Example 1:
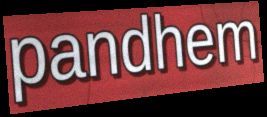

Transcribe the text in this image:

pandhem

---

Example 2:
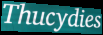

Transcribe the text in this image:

Thucydies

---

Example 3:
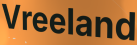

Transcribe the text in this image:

Vreeland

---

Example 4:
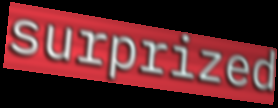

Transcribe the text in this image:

surprized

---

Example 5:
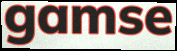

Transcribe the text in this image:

gamse